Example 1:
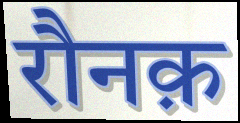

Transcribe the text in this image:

रौनक़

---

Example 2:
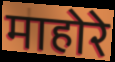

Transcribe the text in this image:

माहोरे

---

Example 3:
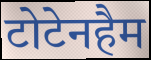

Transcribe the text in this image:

टोटेनहैम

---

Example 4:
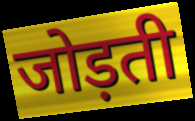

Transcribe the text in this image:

जोड़ती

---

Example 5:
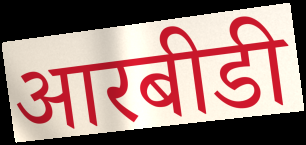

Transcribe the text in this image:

आरबीडी